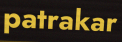
patrakar